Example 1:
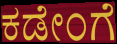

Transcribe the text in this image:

ಕಡೇಂಗೆ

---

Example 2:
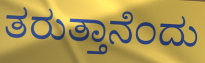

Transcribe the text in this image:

ತರುತ್ತಾನೆಂದು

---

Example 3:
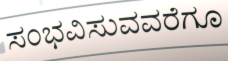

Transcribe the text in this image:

ಸಂಭವಿಸುವವರೆಗೂ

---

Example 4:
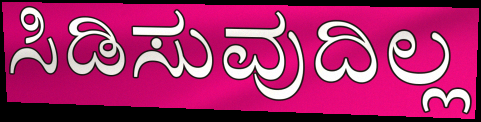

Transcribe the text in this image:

ಸಿಡಿಸುವುದಿಲ್ಲ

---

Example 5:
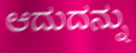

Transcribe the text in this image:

ಆದುದನ್ನು